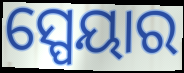
ସ୍ପେୟାର